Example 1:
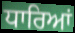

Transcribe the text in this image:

ਧਾਰਿਆਂ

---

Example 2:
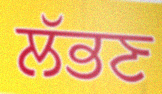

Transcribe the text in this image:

ਲੱਭਣ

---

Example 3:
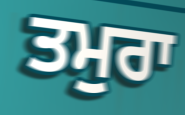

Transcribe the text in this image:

ਤਮੁਰਾ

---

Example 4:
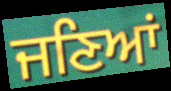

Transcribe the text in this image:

ਜਣਿਆਂ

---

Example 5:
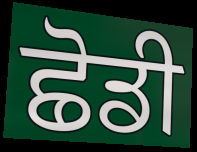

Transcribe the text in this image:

ਛੋਡੀ